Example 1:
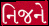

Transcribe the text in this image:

નિજને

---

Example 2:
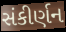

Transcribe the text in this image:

સંકીર્ણન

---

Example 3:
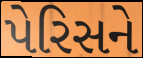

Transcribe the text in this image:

પેરિસને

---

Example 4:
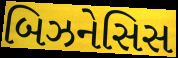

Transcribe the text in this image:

બિઝનેસિસ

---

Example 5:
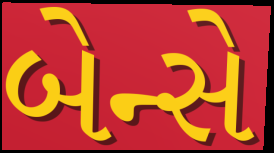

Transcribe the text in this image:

બેન્સે